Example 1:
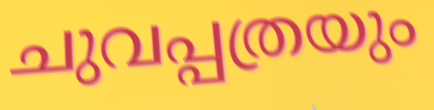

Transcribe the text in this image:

ചുവപ്പത്രയും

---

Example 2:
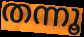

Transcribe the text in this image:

തന്നൂ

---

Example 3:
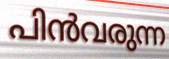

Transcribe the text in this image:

പിൻവരുന്ന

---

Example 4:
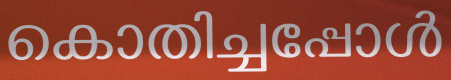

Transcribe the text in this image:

കൊതിച്ചപ്പോൾ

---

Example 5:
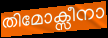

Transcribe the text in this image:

തിമോക്സീനാ